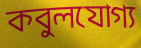
কবুলযোগ্য